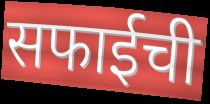
सफाईची